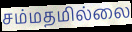
சம்மதமில்லை